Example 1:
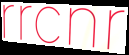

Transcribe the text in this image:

rrcnr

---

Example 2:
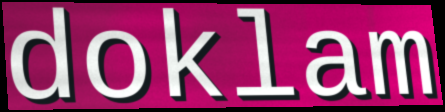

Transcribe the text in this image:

doklam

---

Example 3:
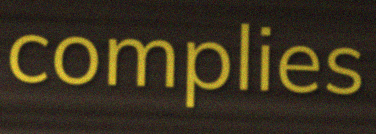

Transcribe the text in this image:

complies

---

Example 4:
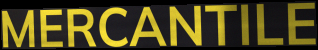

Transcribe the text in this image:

MERCANTILE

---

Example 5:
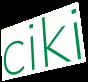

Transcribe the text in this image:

ciki